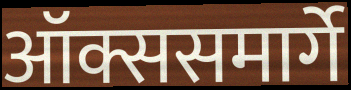
ऑक्ससमार्गे